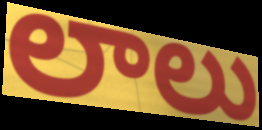
లాలు